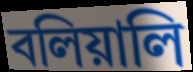
বলিয়ালি